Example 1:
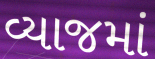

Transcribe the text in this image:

વ્યાજમાં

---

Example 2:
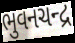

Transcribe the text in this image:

ભુવનચન્દ્ર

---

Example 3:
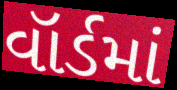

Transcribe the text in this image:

વૉર્ડમાં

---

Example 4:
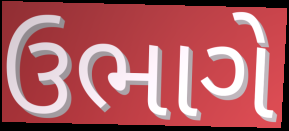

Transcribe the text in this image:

ઉભાગે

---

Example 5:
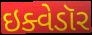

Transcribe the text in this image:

ઇક્વેડૉર